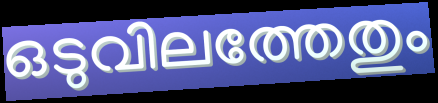
ഒടുവിലത്തേതും